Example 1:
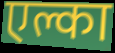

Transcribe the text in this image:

एल्का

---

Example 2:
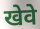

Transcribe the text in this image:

खेवे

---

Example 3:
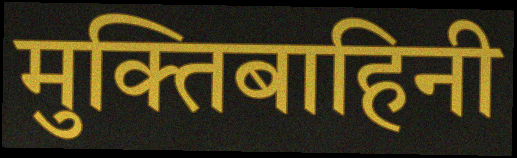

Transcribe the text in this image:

मुक्तिबाहिनी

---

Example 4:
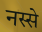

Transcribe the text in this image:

नस्से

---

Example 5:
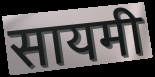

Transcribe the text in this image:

सायमी